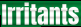
Irritants